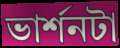
ভার্শনটা